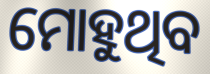
ମୋହୁଥିବ